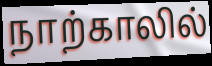
நாற்காலில்